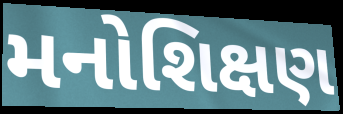
મનોશિક્ષણ